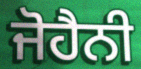
ਜੋਹੈਨੀ